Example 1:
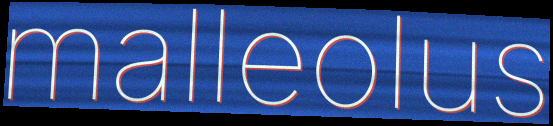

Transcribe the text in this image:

malleolus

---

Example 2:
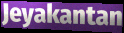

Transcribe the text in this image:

Jeyakantan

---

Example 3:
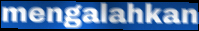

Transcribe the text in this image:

mengalahkan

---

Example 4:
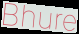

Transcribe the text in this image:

Bhure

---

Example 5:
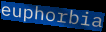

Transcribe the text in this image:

euphorbia